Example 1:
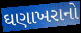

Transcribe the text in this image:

ઘણાખરાનો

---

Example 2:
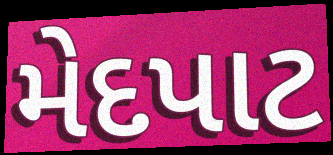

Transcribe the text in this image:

મેદપાટ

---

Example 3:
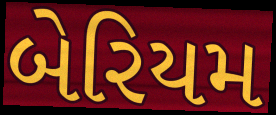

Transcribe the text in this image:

બેરિયમ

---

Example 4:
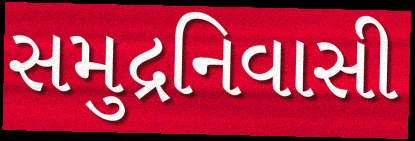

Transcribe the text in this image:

સમુદ્રનિવાસી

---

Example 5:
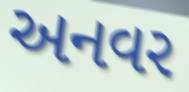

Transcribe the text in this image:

અનવર